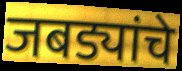
जबड्यांचे